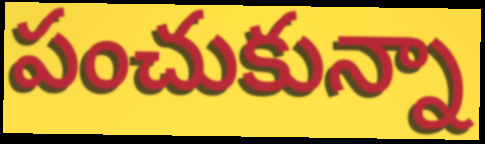
పంచుకున్నా